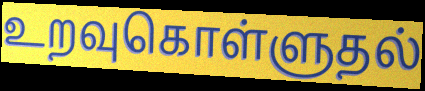
உறவுகொள்ளுதல்